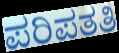
ಪರಿಪತತಿ